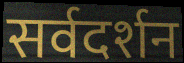
सर्वदर्शन